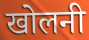
खोलनी